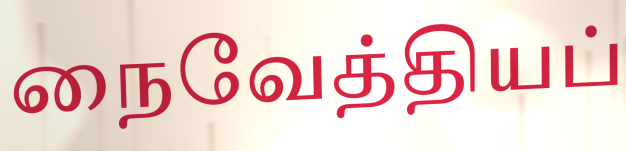
நைவேத்தியப்